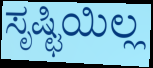
ಸೃಷ್ಟಿಯಿಲ್ಲ